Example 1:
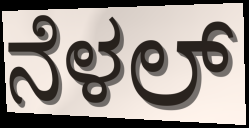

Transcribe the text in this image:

ನೆಳಲ್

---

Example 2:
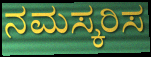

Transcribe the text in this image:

ನಮಸ್ಕರಿಸ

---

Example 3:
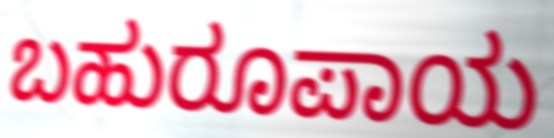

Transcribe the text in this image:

ಬಹುರೂಪಾಯ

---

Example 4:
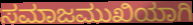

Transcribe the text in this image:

ಸಮಾಜಮುಖಿಯಾಗಿ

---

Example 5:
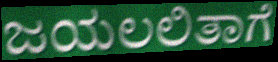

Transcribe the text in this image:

ಜಯಲಲಿತಾಗೆ